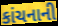
કાંચનાની